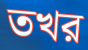
তখর